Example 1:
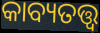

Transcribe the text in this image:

କାବ୍ୟତତ୍ତ୍ୱ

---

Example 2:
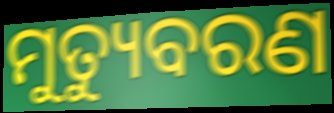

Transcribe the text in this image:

ମୁତ୍ୟୁବରଣ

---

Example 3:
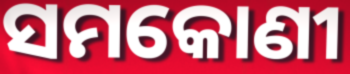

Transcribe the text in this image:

ସମକୋଣୀ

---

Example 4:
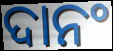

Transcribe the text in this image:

ଦାନଂ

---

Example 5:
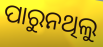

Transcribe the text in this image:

ପାରୁନଥିଲୁ